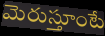
మెరుస్తూంటే